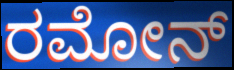
ರಮೋನ್